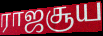
ராஜசூய